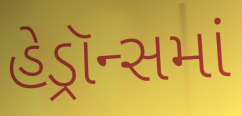
હેડ્રૉન્સમાં